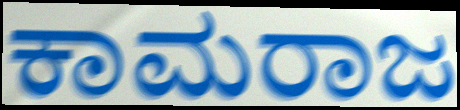
ಕಾಮರಾಜ